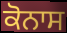
ਕੋਨਾਸ